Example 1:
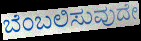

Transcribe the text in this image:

ಬೆಂಬಲಿಸುವುದೇ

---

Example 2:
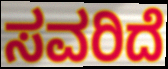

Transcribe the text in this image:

ಸವರಿದೆ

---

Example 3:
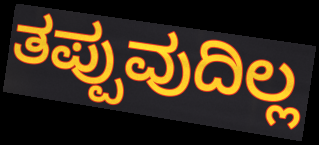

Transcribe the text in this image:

ತಪ್ಪುವುದಿಲ್ಲ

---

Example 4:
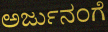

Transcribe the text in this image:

ಅರ್ಜುನಂಗೆ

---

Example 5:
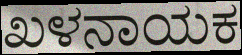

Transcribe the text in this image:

ಖಳನಾಯಕ